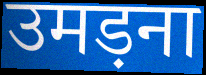
उमड़ना